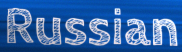
Russian